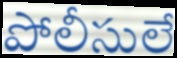
పోలీసులే